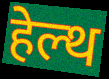
हेल्‍थ